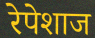
रेपेशाज